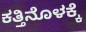
ಕತ್ತಿನೊಳಕ್ಕೆ